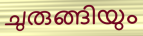
ചുരുങ്ങിയും